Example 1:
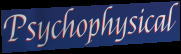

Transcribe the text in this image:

Psychophysical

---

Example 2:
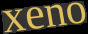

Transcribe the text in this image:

xeno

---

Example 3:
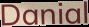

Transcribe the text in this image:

Danial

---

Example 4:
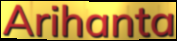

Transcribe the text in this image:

Arihanta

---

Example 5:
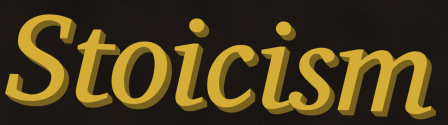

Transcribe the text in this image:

Stoicism